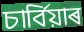
চাৰ্বিয়াৰ